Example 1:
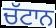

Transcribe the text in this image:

ਚੱਟਾਨ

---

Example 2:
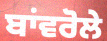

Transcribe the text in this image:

ਬਾਂਵਰੋਲੇ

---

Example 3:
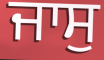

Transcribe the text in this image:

ਜਾਸੁ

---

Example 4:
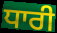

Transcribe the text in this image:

ਧਾਰੀ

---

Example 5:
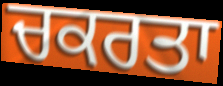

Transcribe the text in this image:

ਚਕਰਤਾ